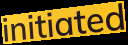
initiated